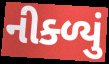
નીક્ળ્યું